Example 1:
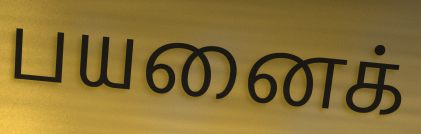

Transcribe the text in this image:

பயனைக்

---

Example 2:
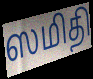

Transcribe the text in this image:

ஸமிதி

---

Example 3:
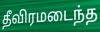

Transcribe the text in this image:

தீவிரமடைந்த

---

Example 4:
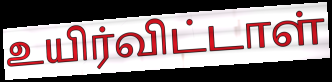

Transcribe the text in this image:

உயிர்விட்டாள்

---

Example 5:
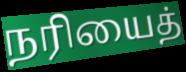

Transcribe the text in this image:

நரியைத்